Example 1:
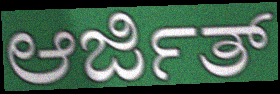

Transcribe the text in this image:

ಆರ್ಜಿತ್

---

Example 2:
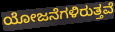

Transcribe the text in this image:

ಯೋಜನೆಗಳಿರುತ್ತವೆ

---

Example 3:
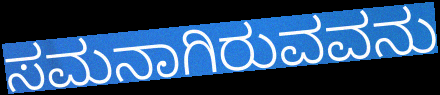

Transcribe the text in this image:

ಸಮನಾಗಿರುವವನು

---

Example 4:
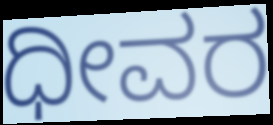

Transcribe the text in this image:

ಧೀವರ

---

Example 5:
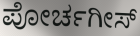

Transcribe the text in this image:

ಪೋರ್ಚಗೀಸ್